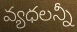
వ్యధలన్నీ